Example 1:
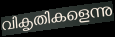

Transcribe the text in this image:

വികൃതികളെന്നു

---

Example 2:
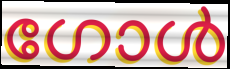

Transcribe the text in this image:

ഗോൾ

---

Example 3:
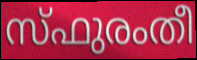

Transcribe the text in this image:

സ്ഫുരംതീ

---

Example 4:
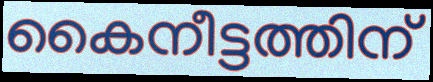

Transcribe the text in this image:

കൈനീട്ടത്തിന്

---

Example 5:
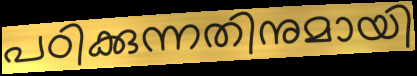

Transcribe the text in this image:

പഠിക്കുന്നതിനുമായി